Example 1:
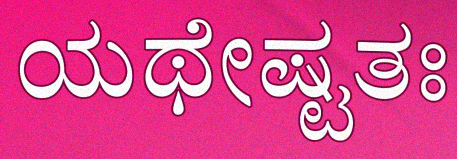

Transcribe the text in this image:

ಯಥೇಷ್ಟತಃ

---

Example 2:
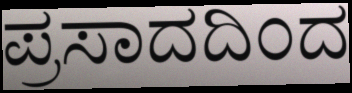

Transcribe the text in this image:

ಪ್ರಸಾದದಿಂದ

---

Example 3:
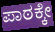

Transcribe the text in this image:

ಪಾಠಕ್ಕೇ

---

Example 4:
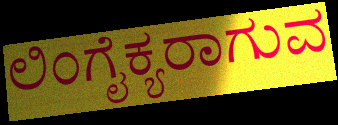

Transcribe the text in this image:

ಲಿಂಗೈಕ್ಯರಾಗುವ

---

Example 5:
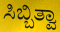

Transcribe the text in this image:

ಸಿಬ್ಬಿತ್ವಾ